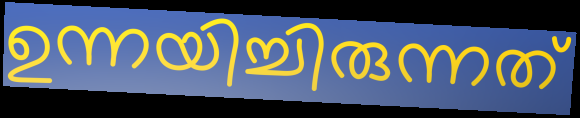
ഉന്നയിച്ചിരുന്നത്